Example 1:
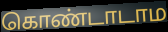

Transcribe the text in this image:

கொண்டாடாம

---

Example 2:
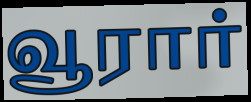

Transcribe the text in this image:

வூரார்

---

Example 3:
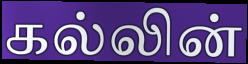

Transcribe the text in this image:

கல்லின்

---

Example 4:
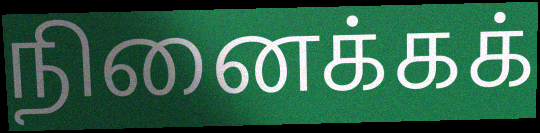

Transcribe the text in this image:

நினைக்கக்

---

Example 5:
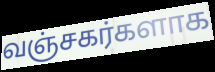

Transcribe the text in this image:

வஞ்சகர்களாக